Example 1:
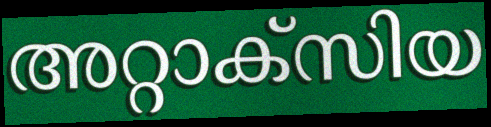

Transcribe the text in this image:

അറ്റാക്സിയ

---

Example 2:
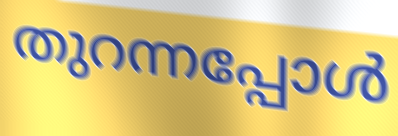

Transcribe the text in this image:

തുറന്നപ്പോൾ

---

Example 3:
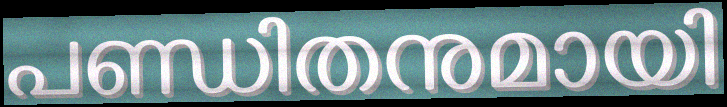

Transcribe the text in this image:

പണ്ഡിതനുമായി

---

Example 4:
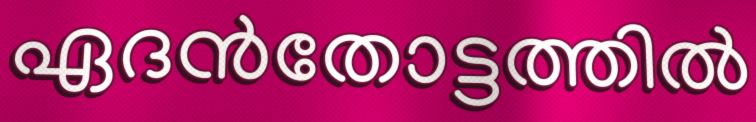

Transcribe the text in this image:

ഏദൻതോട്ടത്തിൽ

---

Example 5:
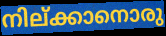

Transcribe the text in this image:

നില്ക്കാനൊരു